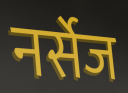
नर्सेज